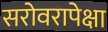
सरोवरापेक्षा